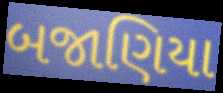
બજાણિયા